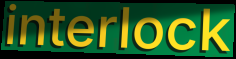
interlock